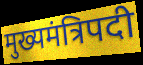
मुख्यमंत्रिपदी